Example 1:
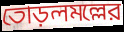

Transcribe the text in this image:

তোড়লমল্লের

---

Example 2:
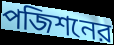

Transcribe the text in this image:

পজিশনের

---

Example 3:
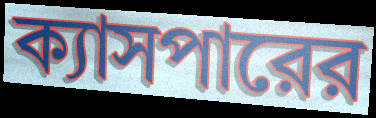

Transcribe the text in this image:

ক্যাসপারের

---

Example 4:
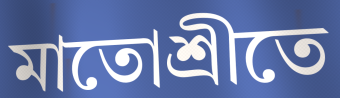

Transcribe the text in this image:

মাতোশ্রীতে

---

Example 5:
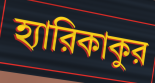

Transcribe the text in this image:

হ্যারিকাকুর